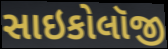
સાઇકોલૉજી